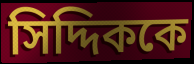
সিদ্দিককে